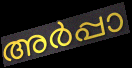
അർപ്പാ